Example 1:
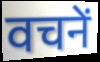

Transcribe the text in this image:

वचनें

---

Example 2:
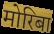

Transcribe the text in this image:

मोरिबा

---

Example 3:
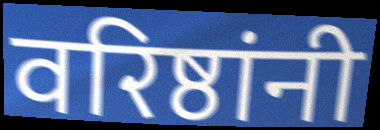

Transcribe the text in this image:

वरिष्ठांनी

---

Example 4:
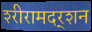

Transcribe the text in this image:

श्रीरामदर्शन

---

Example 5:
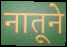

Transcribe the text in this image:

नातूने